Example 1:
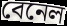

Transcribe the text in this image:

বেনেল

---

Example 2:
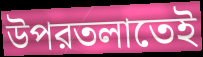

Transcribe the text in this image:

উপরতলাতেই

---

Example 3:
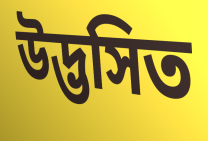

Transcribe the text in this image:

উদ্ভসিত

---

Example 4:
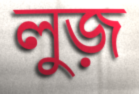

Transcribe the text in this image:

লুজ়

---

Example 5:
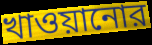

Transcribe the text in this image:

খাওয়ানোর